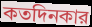
কতদিনকার